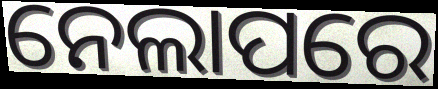
ନେଲାପରେ